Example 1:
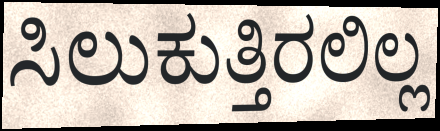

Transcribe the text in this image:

ಸಿಲುಕುತ್ತಿರಲಿಲ್ಲ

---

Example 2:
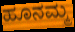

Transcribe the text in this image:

ಹೂನಮ್ಮ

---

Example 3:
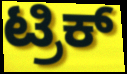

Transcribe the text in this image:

ಟ್ರಿಕ್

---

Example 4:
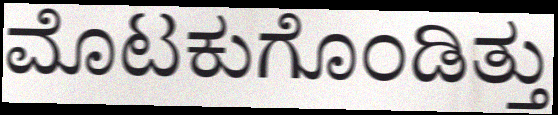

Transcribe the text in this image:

ಮೊಟಕುಗೊಂಡಿತ್ತು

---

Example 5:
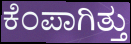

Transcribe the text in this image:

ಕೆಂಪಾಗಿತ್ತು